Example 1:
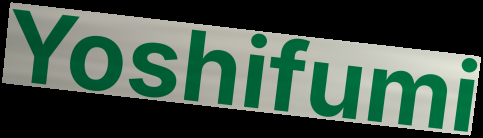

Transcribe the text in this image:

Yoshifumi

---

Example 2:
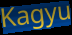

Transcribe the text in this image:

Kagyu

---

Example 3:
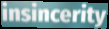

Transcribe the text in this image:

insincerity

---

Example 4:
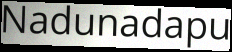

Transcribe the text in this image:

Nadunadapu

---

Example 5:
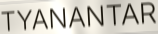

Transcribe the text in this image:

TYANANTAR